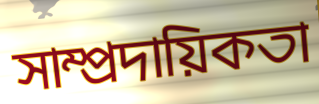
সাম্প্ৰদায়িকতা